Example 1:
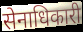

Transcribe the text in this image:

सेनाधिकारी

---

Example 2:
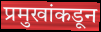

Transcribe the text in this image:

प्रमुखांकडून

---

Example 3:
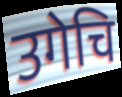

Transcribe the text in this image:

उगेचि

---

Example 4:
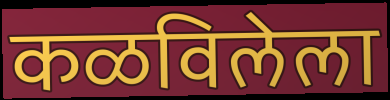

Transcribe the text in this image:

कळविलेला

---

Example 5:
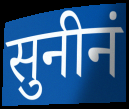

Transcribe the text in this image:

सुनीनं